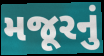
મજૂરનું